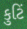
કુટિં